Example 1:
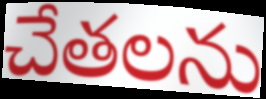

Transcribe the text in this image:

చేతలను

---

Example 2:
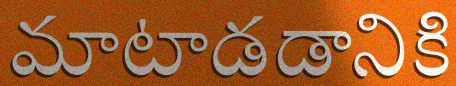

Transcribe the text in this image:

మాటాడడానికి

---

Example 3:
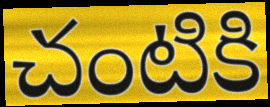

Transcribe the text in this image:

చంటికి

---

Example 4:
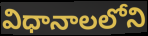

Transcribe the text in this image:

విధానాలలోని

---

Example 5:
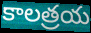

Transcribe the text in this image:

కాలత్రయ